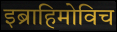
इब्राहिमोविच